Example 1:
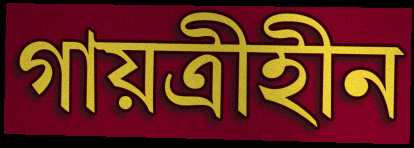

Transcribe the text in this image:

গায়ত্রীহীন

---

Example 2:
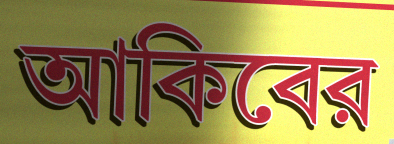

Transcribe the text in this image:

আকিবের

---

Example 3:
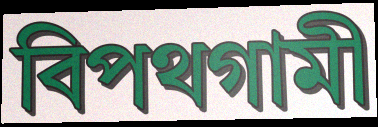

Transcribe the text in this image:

বিপথগামী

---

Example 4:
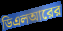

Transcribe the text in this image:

ডিএলআরের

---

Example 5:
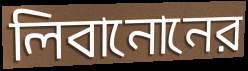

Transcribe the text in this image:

লিবানোনের